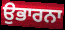
ਉਭਾਰਨਾ